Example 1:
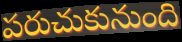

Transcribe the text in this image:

పరుచుకునుంది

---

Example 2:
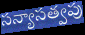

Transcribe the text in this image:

సన్యాసత్వపు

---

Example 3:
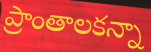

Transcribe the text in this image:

ప్రాంతాలకన్నా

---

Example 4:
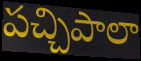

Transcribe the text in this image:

పచ్చిపాలా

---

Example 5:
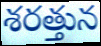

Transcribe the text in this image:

శరత్తున